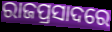
ରାଜପ୍ରସାଦରେ